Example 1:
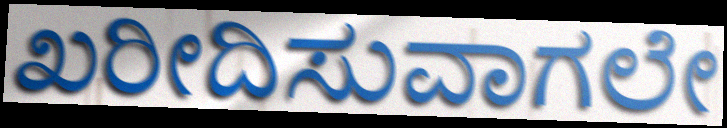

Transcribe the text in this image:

ಖರೀದಿಸುವಾಗಲೇ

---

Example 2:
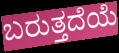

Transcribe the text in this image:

ಬರುತ್ತದೆಯೆ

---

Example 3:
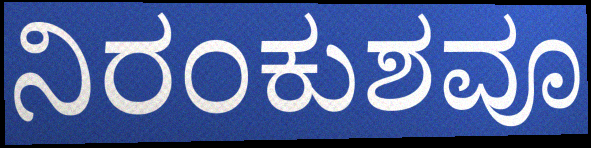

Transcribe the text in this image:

ನಿರಂಕುಶವೂ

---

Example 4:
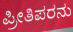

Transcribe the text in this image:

ಪ್ರೀತಿಪರನು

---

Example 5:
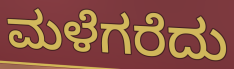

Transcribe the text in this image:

ಮಳೆಗರೆದು